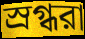
স্রগ্ধরা